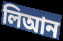
লিআন